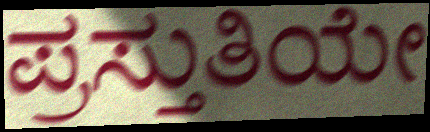
ಪ್ರಸ್ತುತಿಯೇ